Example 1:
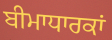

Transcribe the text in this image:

ਬੀਮਾਧਾਰਕਾਂ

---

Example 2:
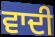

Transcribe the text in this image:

ਵਾਦੀ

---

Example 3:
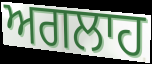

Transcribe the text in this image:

ਅਗਲਾਹ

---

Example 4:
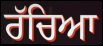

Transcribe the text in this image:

ਰੱਚਿਆ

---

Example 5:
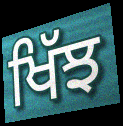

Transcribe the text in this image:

ਖਿੱਝ